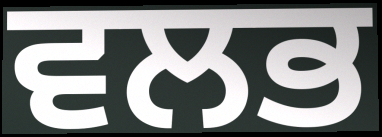
ਵਲਭ